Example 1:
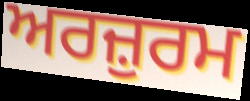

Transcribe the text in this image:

ਅਰਜ਼ੁਰਮ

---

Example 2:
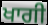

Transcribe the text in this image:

ਖਾਗੀ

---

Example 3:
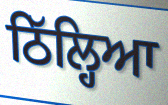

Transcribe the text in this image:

ਠਿੱਲ੍ਹਿਆ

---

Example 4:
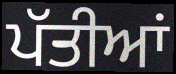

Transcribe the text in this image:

ਪੱਤੀਆਂ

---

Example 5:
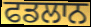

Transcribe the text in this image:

ਫਡਲਾਨ